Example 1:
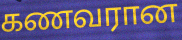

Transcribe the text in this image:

கணவரான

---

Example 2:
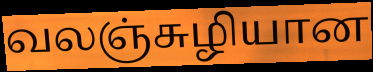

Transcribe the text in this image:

வலஞ்சுழியான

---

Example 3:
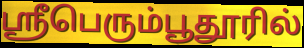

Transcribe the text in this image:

ஸ்ரீபெரும்பூதூரில்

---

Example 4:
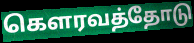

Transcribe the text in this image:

கௌரவத்தோடு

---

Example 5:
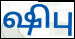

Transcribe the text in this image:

ஷிபு